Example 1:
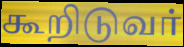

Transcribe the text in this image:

கூறிடுவர்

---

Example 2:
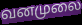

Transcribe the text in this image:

வனமுலை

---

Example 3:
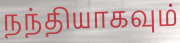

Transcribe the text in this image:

நந்தியாகவும்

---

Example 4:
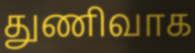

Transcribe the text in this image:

துணிவாக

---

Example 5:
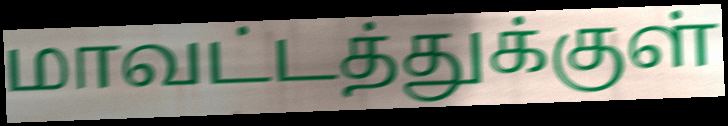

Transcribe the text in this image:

மாவட்டத்துக்குள்